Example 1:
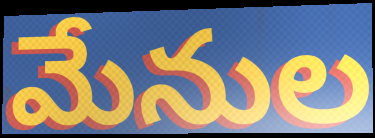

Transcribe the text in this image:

మేనుల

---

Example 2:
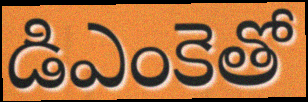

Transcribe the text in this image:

డిఎంకెతో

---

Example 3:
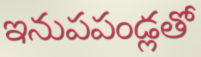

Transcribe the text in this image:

ఇనుపపండ్లతో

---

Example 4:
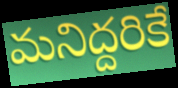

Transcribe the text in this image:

మనిద్దరికే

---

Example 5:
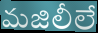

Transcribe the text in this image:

మజిలీలే